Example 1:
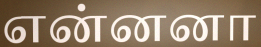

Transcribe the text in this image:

என்னனா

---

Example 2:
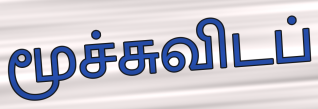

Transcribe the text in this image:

மூச்சுவிடப்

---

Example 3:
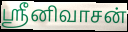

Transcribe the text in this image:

ஸ்ரீனிவாசன்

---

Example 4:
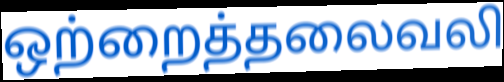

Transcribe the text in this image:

ஒற்றைத்தலைவலி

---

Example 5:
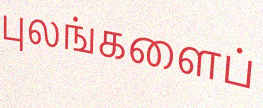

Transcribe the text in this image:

புலங்களைப்